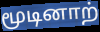
மூடினாற்